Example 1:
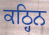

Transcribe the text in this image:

ਕਠ੍ਹਿਨ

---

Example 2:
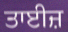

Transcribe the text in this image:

ਤਾਈਜ਼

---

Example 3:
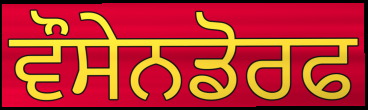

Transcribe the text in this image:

ਵੌਸੇਨਡੋਰਫ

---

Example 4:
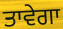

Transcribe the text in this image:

ਤਾਵੇਗਾ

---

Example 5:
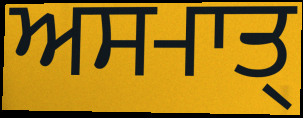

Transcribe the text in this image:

ਅਸ੍ਮਾਤ੍